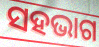
ସହଭାଗ